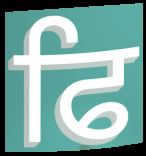
ਫਿ